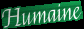
Humaine